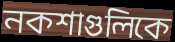
নকশাগুলিকে